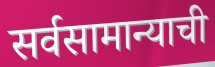
सर्वसामान्याची